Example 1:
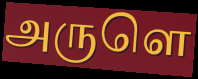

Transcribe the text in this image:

அருளெ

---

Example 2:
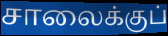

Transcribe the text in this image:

சாலைக்குப்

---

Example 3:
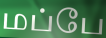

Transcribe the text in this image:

மப்பே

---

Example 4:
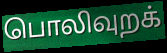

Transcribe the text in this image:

பொலிவுறக்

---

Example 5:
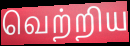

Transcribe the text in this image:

வெற்றிய